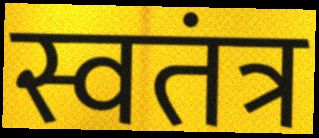
स्‍वतंत्र